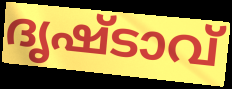
ദൃഷ്ടാവ്